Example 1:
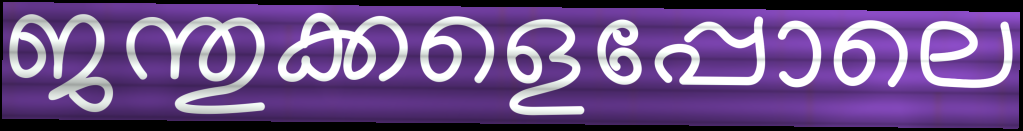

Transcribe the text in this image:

ജന്തുക്കളെപ്പോലെ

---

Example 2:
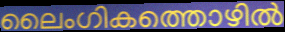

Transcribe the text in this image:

ലൈംഗികത്തൊഴിൽ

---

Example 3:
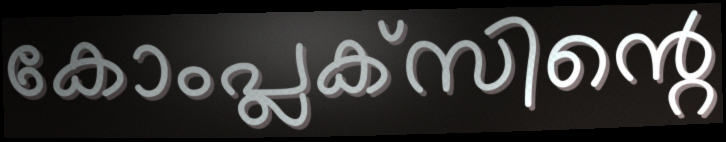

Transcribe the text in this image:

കോംപ്ലക്‌സിന്റെ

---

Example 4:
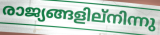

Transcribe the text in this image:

രാജ്യങ്ങളില്നിന്നു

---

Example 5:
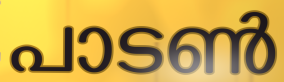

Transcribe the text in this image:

പാടൺ